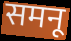
समनू